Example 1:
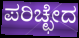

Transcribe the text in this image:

ಪರಿಚ್ಛೇದ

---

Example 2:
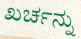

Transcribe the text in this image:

ಖರ್ಚನ್ನು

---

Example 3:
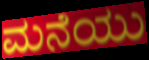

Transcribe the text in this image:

ಮನೆಯು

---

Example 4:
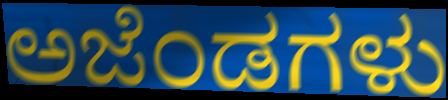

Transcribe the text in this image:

ಅಜೆಂಡಗಳು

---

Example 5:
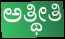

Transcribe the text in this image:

ಅತ್ಥೀತಿ